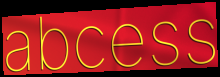
abcess